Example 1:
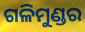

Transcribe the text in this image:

ଗଳିମୁଣ୍ଡର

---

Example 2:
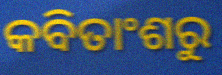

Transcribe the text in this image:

କବିତାଂଶରୁ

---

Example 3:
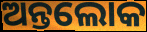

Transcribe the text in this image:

ଅନ୍ତଲୋକ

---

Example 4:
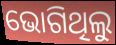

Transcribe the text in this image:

ଭୋଗିଥିଲୁ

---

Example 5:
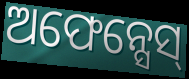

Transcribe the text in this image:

ଅଫେନ୍ସେସ୍